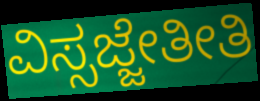
ವಿಸ್ಸಜ್ಜೇತೀತಿ